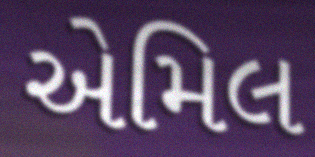
એમિલ